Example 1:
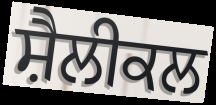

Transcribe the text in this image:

ਸ਼ੈਲੀਕਲ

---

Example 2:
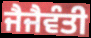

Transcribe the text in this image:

ਜੈਜੈਵੰਤੀ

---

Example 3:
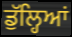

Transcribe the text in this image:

ਡੁੱਲ੍ਹਿਆਂ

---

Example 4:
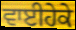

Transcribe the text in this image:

ਵਾਈਹੇਕੇ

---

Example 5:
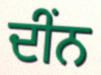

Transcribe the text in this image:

ਦੀਂਨ